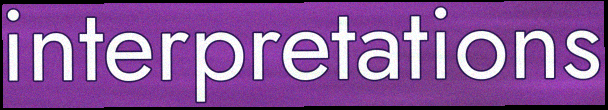
interpretations